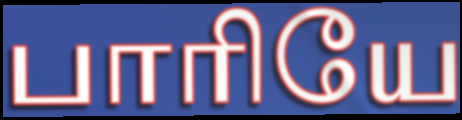
பாரியே